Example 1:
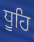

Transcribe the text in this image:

ਧੂਹਿ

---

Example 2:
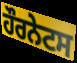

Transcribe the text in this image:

ਹੌਰਨੇਟਸ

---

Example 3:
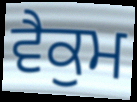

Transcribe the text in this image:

ਵੈਕੁਮ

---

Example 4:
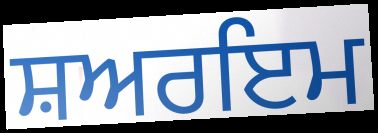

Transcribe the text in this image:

ਸ਼ਅਰਇਮ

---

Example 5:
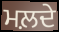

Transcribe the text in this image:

ਮਲ਼ਦੇ